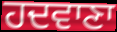
ਹਦਵਾਣਾ